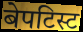
बेपटिस्ट